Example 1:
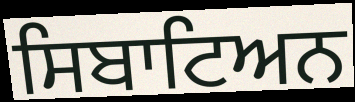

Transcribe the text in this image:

ਸਿਬਾਟਿਅਨ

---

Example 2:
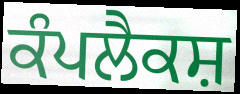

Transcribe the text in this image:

ਕੰਪਲੈਕਸ਼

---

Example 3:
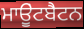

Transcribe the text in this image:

ਮਾਉੂਂਟਬੈਟਨ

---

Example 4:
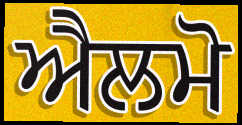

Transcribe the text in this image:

ਐਲਮੋ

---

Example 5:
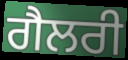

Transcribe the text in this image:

ਗੈਲਰੀ